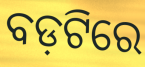
ବଡ଼ଟିରେ